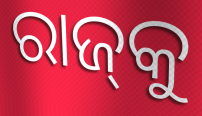
ରାଜ୍‍କୁ